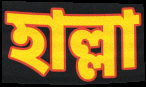
হাল্লা